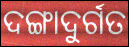
ଦଙ୍ଗାଦୁର୍ଗତ